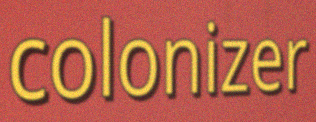
colonizer